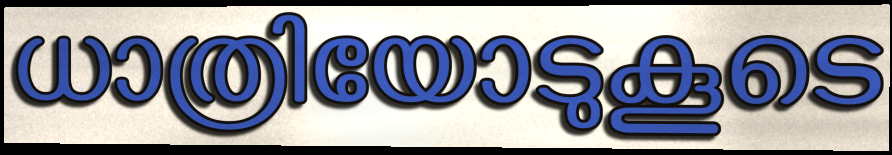
ധാത്രിയോടുകൂടെ